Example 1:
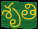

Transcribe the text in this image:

శృతి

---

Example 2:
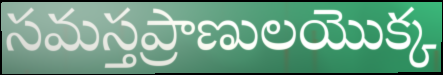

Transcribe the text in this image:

సమస్తప్రాణులయొక్క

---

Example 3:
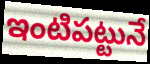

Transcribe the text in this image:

ఇంటిపట్టునే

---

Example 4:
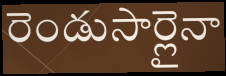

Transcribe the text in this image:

రెండుసార్లైనా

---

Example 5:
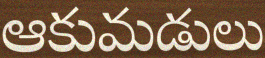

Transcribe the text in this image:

ఆకుమడులు